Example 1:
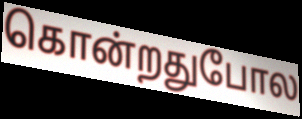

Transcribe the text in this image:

கொன்றதுபோல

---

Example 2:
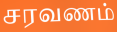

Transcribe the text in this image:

சரவணம்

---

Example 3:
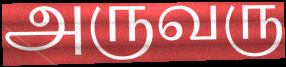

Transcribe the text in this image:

அருவரு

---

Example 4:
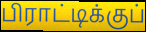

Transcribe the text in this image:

பிராட்டிக்குப்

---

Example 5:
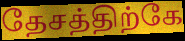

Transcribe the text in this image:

தேசத்திற்கே